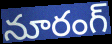
నూరంగ్